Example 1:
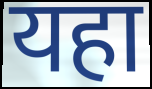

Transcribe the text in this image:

यहा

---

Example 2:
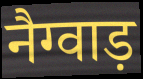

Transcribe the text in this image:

नैग्वाड़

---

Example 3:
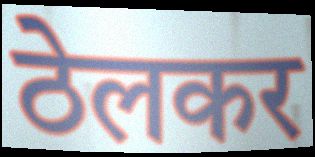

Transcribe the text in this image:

ठेलकर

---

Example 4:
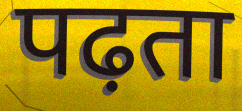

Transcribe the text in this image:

पढ़ता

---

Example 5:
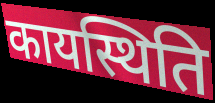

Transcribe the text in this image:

कायस्थिति